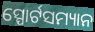
ସ୍ପୋର୍ଟସମ୍ୟାନ